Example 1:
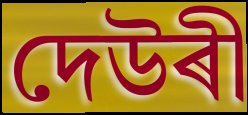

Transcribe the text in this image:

দেউৰী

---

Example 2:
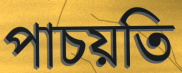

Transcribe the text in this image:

পাচয়তি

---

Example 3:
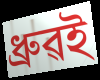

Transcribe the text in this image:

ধ্ৰুৱই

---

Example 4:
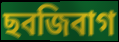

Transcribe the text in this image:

ছবজিবাগ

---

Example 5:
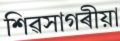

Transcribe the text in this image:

শিৱসাগৰীয়া